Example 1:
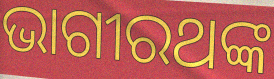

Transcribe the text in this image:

ଭାଗୀରଥଙ୍କ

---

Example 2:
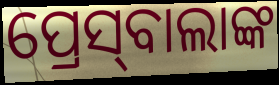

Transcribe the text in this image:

ପ୍ରେସ୍‌ବାଲାଙ୍କ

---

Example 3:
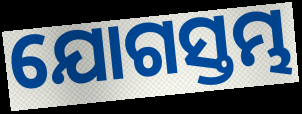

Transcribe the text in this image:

ଯୋଗସ୍ତମ୍ଭ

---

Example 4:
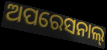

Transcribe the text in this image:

ଅପରେସନାଲ୍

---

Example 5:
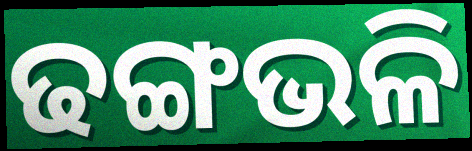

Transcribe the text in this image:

ଢଙ୍ଗଭଳି